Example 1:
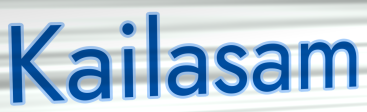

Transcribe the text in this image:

Kailasam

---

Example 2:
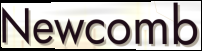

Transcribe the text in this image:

Newcomb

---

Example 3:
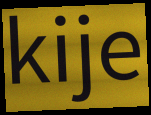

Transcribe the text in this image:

kije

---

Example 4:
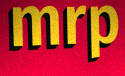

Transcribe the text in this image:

mrp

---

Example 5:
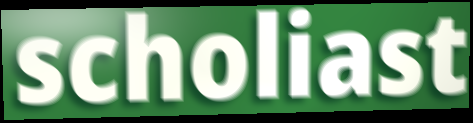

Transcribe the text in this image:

scholiast